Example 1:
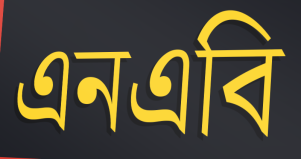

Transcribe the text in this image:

এনএবি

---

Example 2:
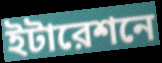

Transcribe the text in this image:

ইটারেশনে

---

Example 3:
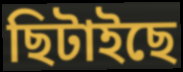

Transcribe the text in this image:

ছিটাইছে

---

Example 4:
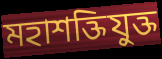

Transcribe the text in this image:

মহাশক্তিযুক্ত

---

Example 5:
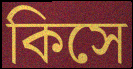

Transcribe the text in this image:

কিসে